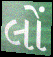
લોં